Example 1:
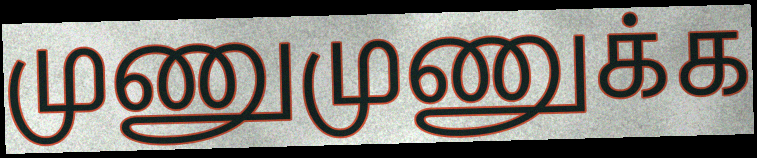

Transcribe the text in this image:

முணுமுணுக்க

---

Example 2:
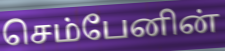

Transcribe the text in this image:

செம்பேனின்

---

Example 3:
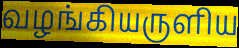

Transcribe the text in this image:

வழங்கியருளிய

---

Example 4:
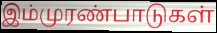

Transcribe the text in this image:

இம்முரண்பாடுகள்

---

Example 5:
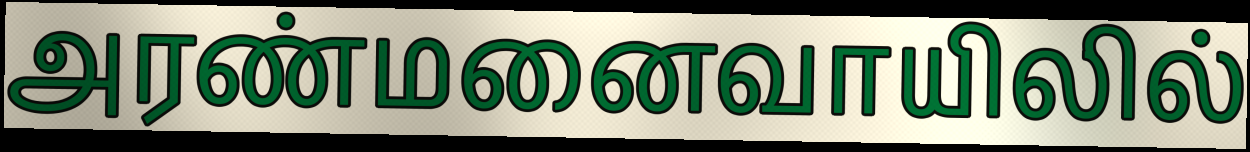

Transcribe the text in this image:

அரண்மனைவாயிலில்